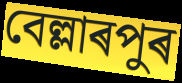
বেল্লাৰপুৰ